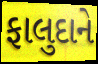
ફાલુદાને